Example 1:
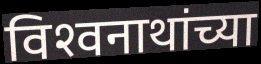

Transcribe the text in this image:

विश्वनाथांच्या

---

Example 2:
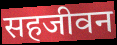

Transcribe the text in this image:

सहजीवन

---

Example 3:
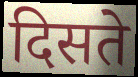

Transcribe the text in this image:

दिसते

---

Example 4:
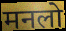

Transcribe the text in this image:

मनलो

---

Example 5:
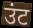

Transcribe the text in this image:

उंट